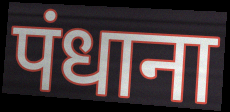
पंधाना